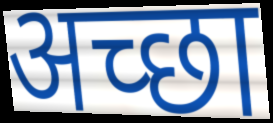
अच्‍छा